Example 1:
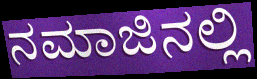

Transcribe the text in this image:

ನಮಾಜಿನಲ್ಲಿ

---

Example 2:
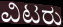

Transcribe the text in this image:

ವಿಟರು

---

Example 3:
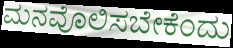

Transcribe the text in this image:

ಮನವೊಲಿಸಬೇಕೆಂದು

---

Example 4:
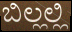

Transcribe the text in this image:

ಬಿಲ್ಲಲ್ಲಿ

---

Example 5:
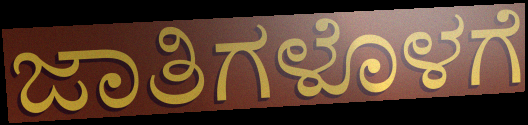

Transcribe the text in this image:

ಜಾತಿಗಳೊಳಗೆ